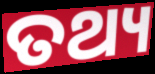
ତଥ୍ୟ